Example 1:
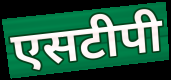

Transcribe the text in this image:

एसटीपी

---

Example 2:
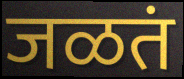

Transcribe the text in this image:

जळतं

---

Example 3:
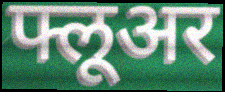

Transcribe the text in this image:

फ्लूअर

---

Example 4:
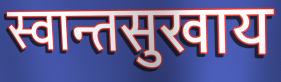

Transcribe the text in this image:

स्वान्तसुखाय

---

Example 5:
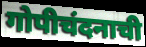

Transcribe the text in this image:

गोपीचंदनाची